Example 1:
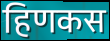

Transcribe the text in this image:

हिणकस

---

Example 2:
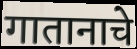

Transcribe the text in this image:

गातानाचे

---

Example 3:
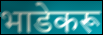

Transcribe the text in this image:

भाडेकरू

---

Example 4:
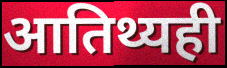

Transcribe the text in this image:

आतिथ्यही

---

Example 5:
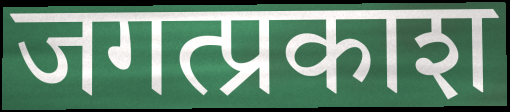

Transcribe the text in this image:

जगत्प्रकाश